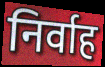
निर्वाह